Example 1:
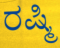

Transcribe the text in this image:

ರಷ್ಮಿ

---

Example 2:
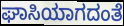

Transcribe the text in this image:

ಘಾಸಿಯಾಗದಂತೆ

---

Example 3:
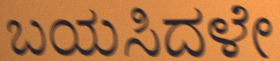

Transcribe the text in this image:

ಬಯಸಿದಳೇ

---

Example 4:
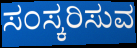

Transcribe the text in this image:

ಸಂಸ್ಕರಿಸುವ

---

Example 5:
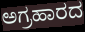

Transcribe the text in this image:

ಅಗ್ರಹಾರದ